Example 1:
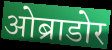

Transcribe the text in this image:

ओब्राडोर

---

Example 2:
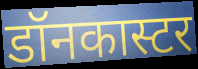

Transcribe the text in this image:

डॉनकास्टर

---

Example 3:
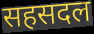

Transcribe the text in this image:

सहसदल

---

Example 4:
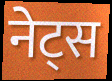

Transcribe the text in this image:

नेट्स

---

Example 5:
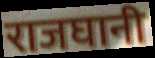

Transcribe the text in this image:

राजघानी